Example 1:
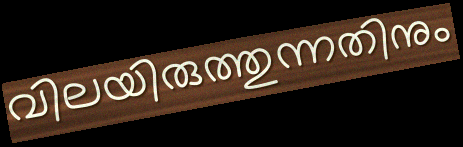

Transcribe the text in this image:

വിലയിരുത്തുന്നതിനും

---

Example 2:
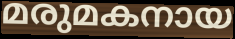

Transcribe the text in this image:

മരുമകനായ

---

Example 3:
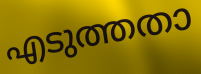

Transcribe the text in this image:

എടുത്തതാ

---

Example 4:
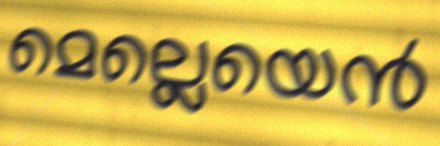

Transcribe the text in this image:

മെല്ലെയെൻ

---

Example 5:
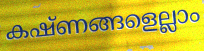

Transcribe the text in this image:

കഷ്ണങ്ങളെല്ലാം